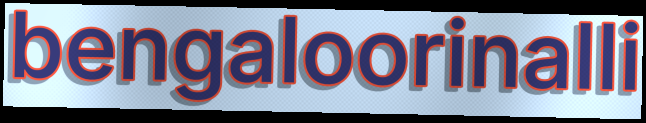
bengaloorinalli